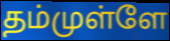
தம்முள்ளே